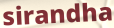
sirandha